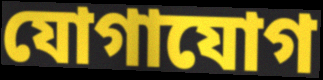
যোগাযোগ